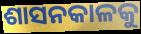
ଶାସନକାଳକୁ